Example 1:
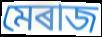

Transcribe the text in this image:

মেৰাজ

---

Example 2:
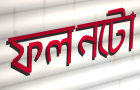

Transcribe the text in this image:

ফলনটো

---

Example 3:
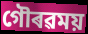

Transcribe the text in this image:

গৌৰৱময়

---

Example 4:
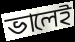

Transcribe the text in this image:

ভালেই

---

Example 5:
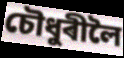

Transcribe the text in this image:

চৌধুৰীলৈ